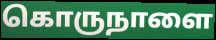
கொருநாளை